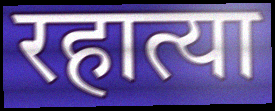
रहात्या